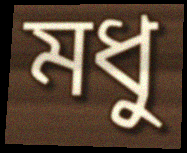
মধু